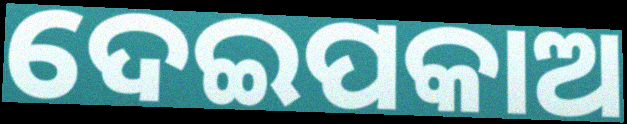
ଦେଇପକାଅ